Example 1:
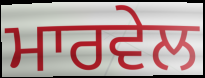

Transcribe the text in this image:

ਮਾਰਵੇਲ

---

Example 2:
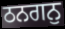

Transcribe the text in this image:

ਠਨਗਨੁ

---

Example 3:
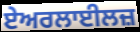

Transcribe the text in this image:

ਏਅਰਲਾਈਲਜ਼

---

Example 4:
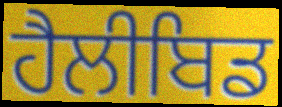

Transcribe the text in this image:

ਹੈਲੀਬਿਡ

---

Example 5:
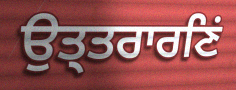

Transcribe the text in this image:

ਉਤ੍ਤਰਾਰਣਿਂ